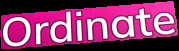
Ordinate